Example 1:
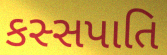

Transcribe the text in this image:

કસ્સપાતિ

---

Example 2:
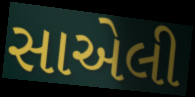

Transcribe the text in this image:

સાએલી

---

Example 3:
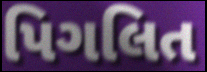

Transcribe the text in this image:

પિગલિત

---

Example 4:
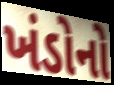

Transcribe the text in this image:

ખંડોનો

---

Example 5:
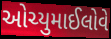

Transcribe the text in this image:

ઓચ્યુમાઈલોવે